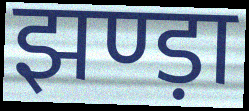
झण्ड़ा